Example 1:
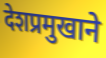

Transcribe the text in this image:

देशप्रमुखाने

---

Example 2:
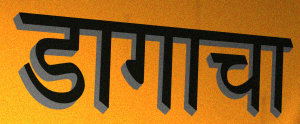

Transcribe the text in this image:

डागाचा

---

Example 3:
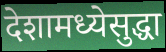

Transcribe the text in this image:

देशामध्येसुद्धा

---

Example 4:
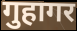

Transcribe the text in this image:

गुहागर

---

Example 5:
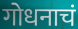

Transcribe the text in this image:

गोधनाचं